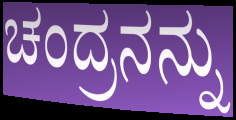
ಚಂದ್ರನನ್ನು